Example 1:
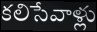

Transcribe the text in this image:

కలిసేవాళ్లు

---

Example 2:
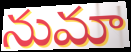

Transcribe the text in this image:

నుమా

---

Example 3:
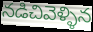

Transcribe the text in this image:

నడిచివెళ్ళిన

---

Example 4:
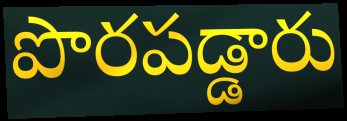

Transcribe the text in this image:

పొరపడ్డారు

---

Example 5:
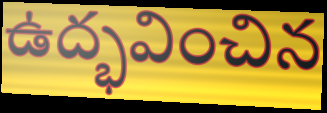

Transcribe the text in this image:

ఉద్భవించిన